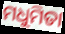
ମଧୁମିତା